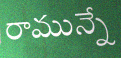
రామున్నే